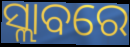
ସ୍ଲାବରେ